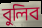
বুলিব